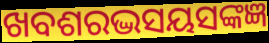
ଖବଶରଦ୍ଭସୟସଙ୍କଜ୍ଞ